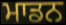
ਮਾਡਨ